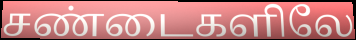
சண்டைகளிலே